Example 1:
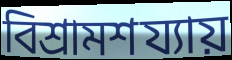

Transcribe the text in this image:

বিশ্রামশয্যায়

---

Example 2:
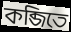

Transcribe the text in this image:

কব্জিতে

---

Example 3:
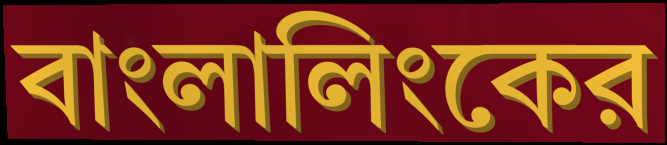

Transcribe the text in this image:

বাংলালিংকের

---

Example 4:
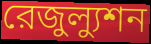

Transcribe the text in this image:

রেজুল্যুশন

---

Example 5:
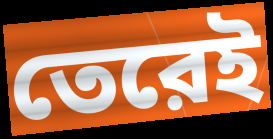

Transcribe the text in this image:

তেরেই